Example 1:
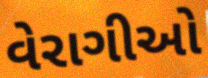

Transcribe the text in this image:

વેરાગીઓ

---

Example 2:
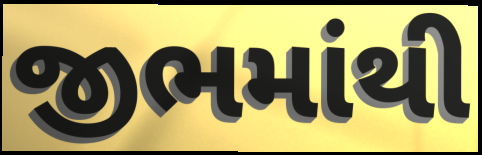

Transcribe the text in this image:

જીભમાંથી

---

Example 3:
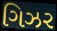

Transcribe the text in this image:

ગિઝર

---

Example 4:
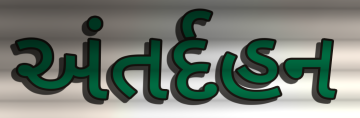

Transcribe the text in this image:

અંતર્દહન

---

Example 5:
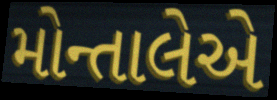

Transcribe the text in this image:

મોન્તાલેએ